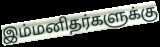
இம்மனிதர்களுக்கு